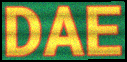
DAE